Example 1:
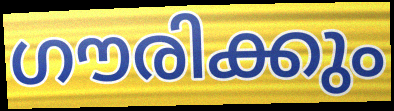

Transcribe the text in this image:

ഗൗരിക്കും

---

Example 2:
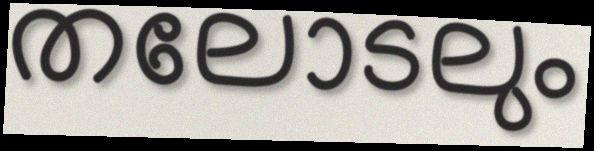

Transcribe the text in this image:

തലോടലും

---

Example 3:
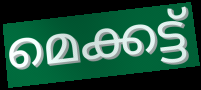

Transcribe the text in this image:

മെക്കട്ട്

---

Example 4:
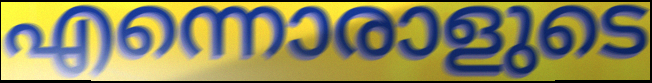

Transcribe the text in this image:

എന്നൊരാളുടെ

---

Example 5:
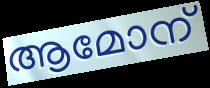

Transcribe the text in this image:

ആമോന്